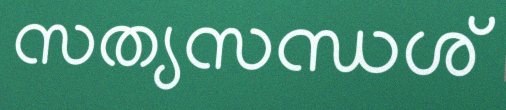
സത്യസന്ധശ്